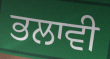
ਭਲਾਵੀ